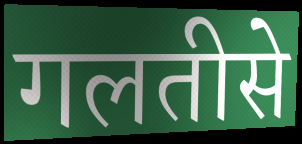
गलतीसे